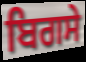
ਬਿਗਸੇ